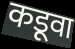
कडूवा